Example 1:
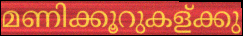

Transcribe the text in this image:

മണിക്കൂറുകള്ക്കു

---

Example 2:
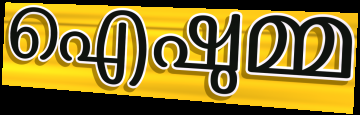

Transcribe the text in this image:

ഐഷുമ്മ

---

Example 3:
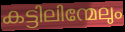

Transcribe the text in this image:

കട്ടിലിന്മേലും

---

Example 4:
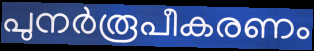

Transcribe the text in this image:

പുനർരൂപീകരണം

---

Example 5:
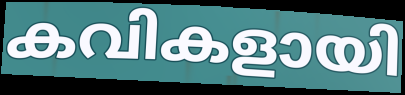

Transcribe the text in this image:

കവികളായി